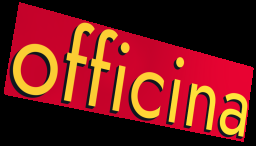
officina